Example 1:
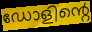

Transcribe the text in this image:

ഡോളിന്റെ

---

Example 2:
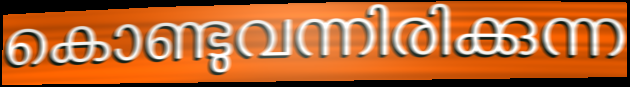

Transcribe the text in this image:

കൊണ്ടുവന്നിരിക്കുന്ന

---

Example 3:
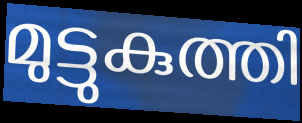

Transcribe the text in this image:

മുട്ടുകുത്തി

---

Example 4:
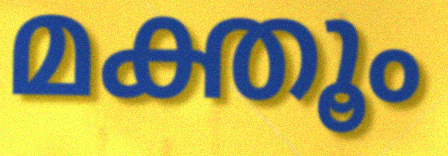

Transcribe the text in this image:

മക്തൂം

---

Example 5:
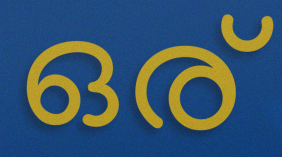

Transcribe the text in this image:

ഒര്